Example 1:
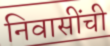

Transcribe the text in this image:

निवासींची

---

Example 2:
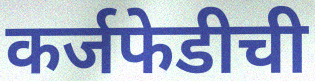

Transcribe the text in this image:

कर्जफेडीची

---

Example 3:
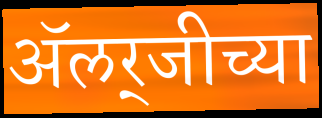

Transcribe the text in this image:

ॲलर्जीच्या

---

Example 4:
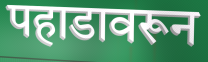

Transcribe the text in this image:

पहाडावरून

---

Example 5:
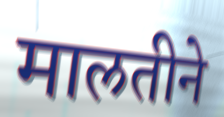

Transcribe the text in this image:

मालतीने